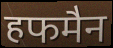
हफमैन